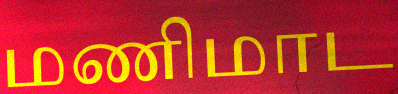
மணிமாட